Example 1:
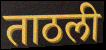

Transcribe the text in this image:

ताठली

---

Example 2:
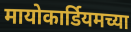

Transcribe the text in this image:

मायोकार्डियमच्या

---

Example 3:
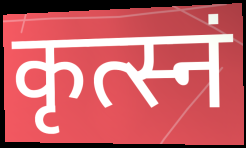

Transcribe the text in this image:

कृत्स्नं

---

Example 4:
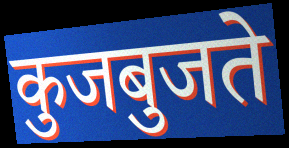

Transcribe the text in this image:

कुजबुजते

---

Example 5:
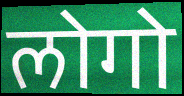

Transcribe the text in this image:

लोगो